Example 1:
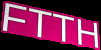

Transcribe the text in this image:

FTTH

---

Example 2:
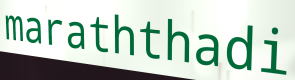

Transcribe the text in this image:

maraththadi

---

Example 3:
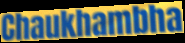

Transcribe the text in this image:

Chaukhambha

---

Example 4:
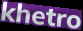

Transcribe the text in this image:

khetro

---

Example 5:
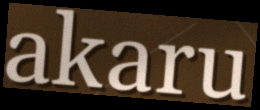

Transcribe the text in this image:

akaru